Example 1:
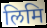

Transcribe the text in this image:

लिमि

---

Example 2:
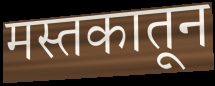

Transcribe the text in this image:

मस्तकातून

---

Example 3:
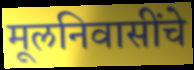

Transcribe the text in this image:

मूलनिवासींचे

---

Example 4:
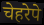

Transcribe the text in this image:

चेहरेपे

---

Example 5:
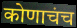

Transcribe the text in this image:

कोणाचंच